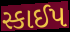
સ્કાઈપ